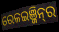
ରେଳଇଞ୍ଜିନ୍‌ର